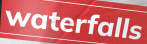
waterfalls